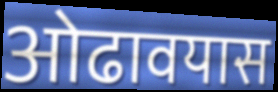
ओढावयास